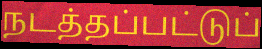
நடத்தப்பட்டுப்